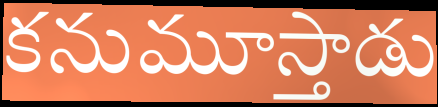
కనుమూస్తాడు